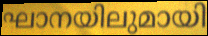
ഘാനയിലുമായി